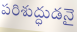
పరిశుద్ధుడనై